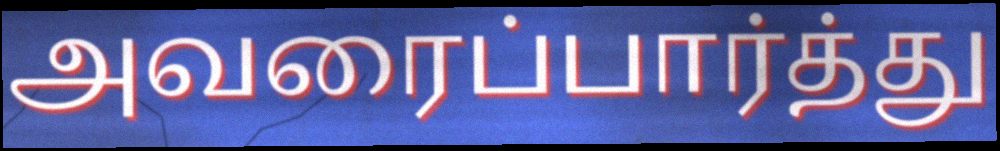
அவரைப்பார்த்து